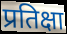
प्रतिक्षा